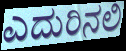
ಎದುರಿನಲಿ